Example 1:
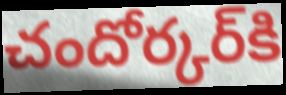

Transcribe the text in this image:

చందోర్కర్‌కి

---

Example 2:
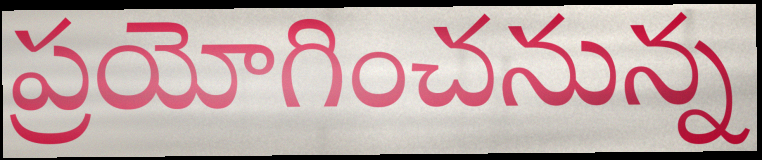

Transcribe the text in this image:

ప్రయోగించనున్న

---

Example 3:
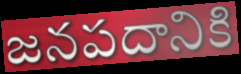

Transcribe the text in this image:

జనపదానికి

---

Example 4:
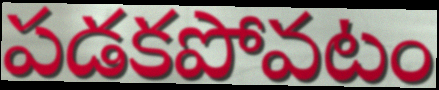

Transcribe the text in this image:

పడకపోవటం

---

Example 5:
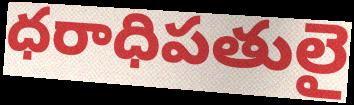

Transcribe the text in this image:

ధరాధిపతులై